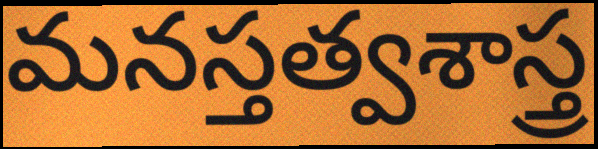
మనస్తత్వశాస్త్ర